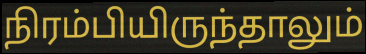
நிரம்பியிருந்தாலும்